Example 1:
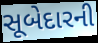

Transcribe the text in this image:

સૂબેદારની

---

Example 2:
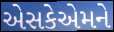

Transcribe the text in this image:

એસકેએમને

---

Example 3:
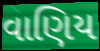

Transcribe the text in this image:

વાણિય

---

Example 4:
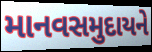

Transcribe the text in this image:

માનવસમુદાયને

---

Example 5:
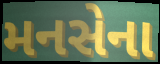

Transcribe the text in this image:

મનસેના